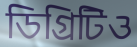
ডিগ্রিটিও